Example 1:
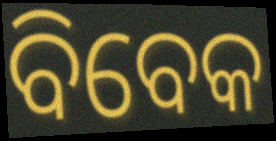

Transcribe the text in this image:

ବିବେକ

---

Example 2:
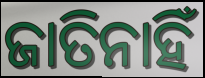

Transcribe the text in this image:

ଜାତିନାହିଁ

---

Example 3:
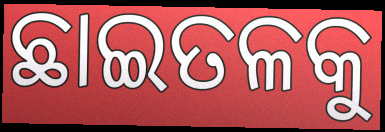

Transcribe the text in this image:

ଛାଇତଳକୁ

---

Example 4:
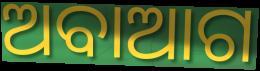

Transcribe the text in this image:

ଅବାଆଗ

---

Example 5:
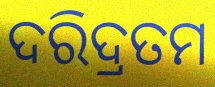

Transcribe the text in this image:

ଦରିଦ୍ରତମ